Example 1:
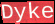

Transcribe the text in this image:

Dyke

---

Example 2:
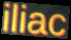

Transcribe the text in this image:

iliac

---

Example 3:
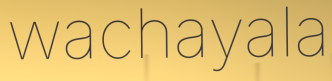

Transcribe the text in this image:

wachayala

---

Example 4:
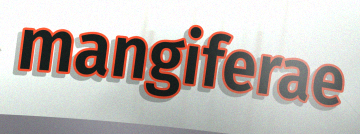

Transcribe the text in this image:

mangiferae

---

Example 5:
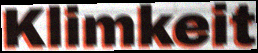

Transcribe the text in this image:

Klimkeit